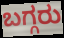
ಬಗ್ಗರು